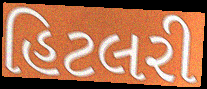
હિટલરી